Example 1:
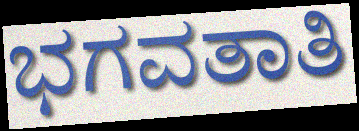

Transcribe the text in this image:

ಭಗವತಾತಿ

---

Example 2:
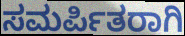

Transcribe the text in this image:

ಸಮರ್ಪಿತರಾಗಿ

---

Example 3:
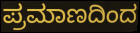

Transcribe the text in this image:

ಪ್ರಮಾಣದಿಂದ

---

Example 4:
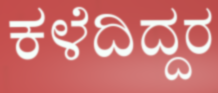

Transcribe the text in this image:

ಕಳೆದಿದ್ದರ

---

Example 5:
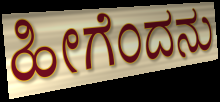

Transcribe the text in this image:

ಹೀಗೆಂದನು